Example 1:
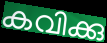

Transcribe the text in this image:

കവിക്കു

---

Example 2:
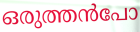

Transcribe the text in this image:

ഒരുത്തൻപോ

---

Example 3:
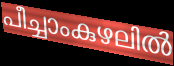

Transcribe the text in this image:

പീച്ചാംകുഴലിൽ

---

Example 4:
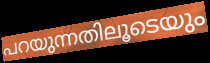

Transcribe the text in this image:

പറയുന്നതിലൂടെയും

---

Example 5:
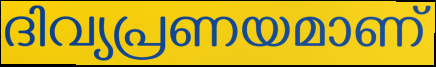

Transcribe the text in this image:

ദിവ്യപ്രണയമാണ്